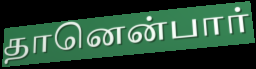
தானென்பார்